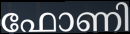
ഫോണി